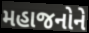
મહાજનોને